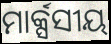
ମାର୍କ୍ସସୀୟ